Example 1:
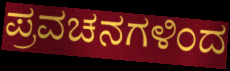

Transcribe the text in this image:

ಪ್ರವಚನಗಳಿಂದ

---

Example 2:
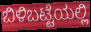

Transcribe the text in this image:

ಬಿಳಿಬಟ್ಟೆಯಲ್ಲಿ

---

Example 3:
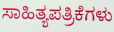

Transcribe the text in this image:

ಸಾಹಿತ್ಯಪತ್ರಿಕೆಗಳು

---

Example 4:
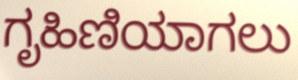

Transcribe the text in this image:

ಗೃಹಿಣಿಯಾಗಲು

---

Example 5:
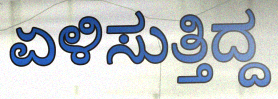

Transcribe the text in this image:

ಏಳಿಸುತ್ತಿದ್ದ